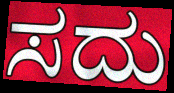
ಸದು